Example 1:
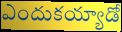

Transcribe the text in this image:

ఎందుకయ్యాడో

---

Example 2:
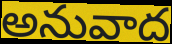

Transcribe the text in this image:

అనువాద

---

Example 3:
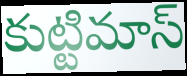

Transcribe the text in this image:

కుట్టిమాస్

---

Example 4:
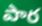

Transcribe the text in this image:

పార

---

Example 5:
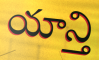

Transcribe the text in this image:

యాన్తి